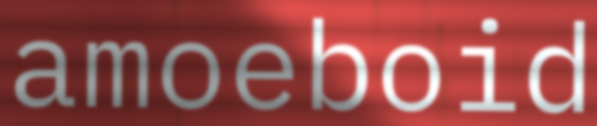
amoeboid